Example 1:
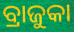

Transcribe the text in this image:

ବ୍ରାଜୁକା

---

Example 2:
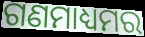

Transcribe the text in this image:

ଗଣମାଧ୍ୟମର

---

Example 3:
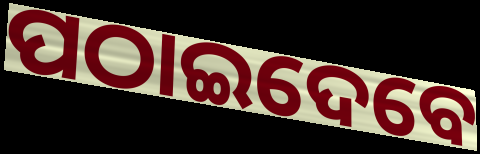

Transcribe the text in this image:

ପଠାଇଦେବେ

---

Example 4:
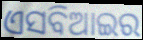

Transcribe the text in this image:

ଏସବିଆଇର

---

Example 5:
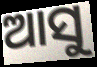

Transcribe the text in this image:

ଆସୁ